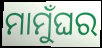
ମାମୁଁଘର